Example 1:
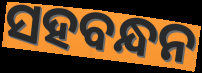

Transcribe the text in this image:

ସହବନ୍ଧନ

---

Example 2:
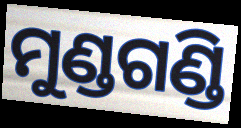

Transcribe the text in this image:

ମୁଣ୍ଡଗଣ୍ଡି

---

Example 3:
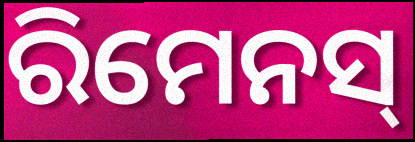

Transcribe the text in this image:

ରିମେନସ୍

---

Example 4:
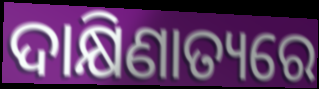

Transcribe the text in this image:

ଦାକ୍ଷିଣାତ୍ୟରେ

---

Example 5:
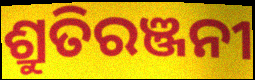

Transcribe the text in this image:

ଶ୍ରୁତିରଞ୍ଜନୀ